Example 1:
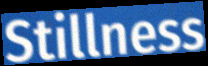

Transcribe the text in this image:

Stillness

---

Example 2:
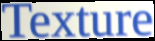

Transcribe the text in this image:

Texture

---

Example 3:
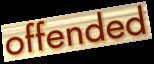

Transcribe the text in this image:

offended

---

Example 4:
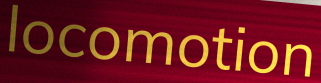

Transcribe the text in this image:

locomotion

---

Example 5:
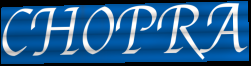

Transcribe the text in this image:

CHOPRA